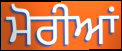
ਮੋਰੀਆਂ